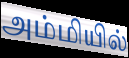
அம்மியில்